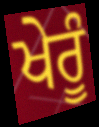
ਖੇਰੂੰ